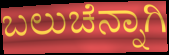
ಬಲುಚೆನ್ನಾಗಿ